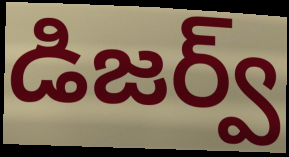
డిజర్వ్